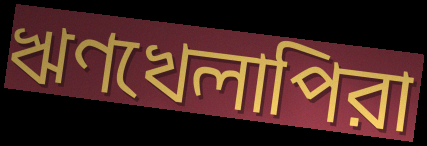
ঋণখেলাপিরা